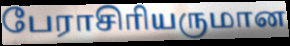
பேராசிரியருமான